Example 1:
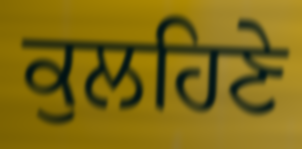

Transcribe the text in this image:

ਕੁਲਹਿਣੇ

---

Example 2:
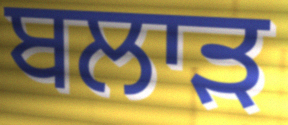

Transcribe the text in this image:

ਬਲਾੜ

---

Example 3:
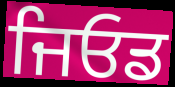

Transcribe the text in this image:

ਜਿਓਡ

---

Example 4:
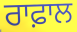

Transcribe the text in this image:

ਰਾਫ਼ਾਲ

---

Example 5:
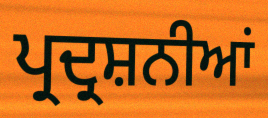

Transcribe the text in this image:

ਪ੍ਰਦ੍ਰਸ਼ਨੀਆਂ